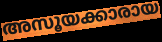
അസൂയക്കാരായ